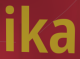
ika